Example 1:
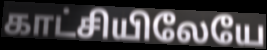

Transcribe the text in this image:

காட்சியிலேயே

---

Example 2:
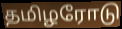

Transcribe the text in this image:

தமிழரோடு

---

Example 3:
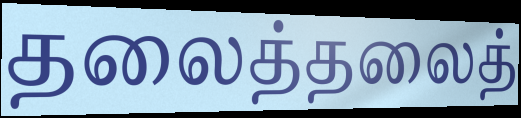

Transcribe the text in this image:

தலைத்தலைத்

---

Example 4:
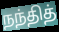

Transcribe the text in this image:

நந்தித்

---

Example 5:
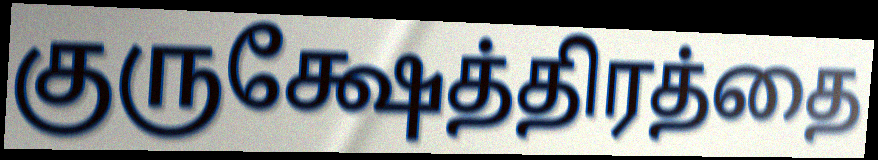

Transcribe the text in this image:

குருக்ஷேத்திரத்தை